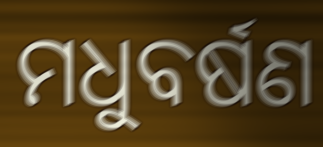
ମଧୁବର୍ଷଣ